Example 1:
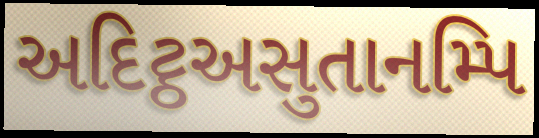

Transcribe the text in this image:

અદિટ્ઠઅસુતાનમ્પિ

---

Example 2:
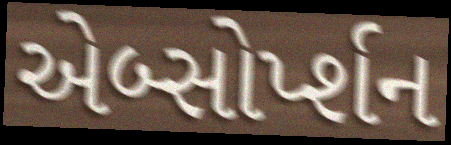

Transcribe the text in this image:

એબ્સોર્પ્શન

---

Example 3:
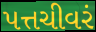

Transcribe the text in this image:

પત્તચીવરં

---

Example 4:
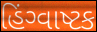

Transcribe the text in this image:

હિંગ્વાષ્ટક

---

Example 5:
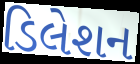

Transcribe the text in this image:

ડિલેશન